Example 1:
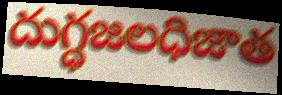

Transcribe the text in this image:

దుగ్ధజలధిజాత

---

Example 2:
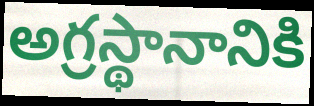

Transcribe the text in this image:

అగ్రస్థానానికి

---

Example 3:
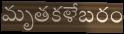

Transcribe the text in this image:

మృతకళేబరం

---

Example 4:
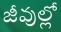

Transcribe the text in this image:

జీవుల్లో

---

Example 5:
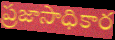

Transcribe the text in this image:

ప్రజాసాధికార